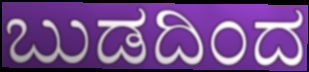
ಬುಡದಿಂದ